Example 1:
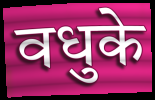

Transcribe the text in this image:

वधुके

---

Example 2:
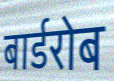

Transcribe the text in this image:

बार्डरोब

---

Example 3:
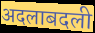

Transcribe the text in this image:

अदलाबदली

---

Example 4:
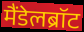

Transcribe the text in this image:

मैंडेलब्रॉट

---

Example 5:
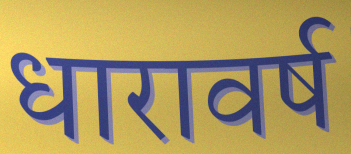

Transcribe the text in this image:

धारावर्ष